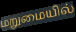
மறுமையில்